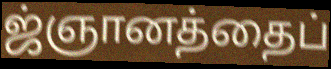
ஜ்ஞானத்தைப்